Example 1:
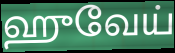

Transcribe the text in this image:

ஹுவேய்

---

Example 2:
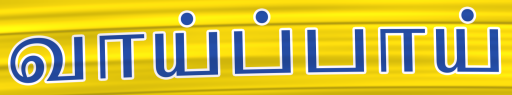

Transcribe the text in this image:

வாய்ப்பாய்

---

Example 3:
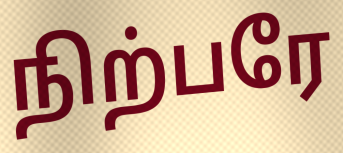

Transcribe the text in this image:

நிற்பரே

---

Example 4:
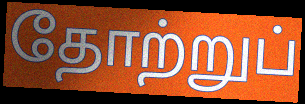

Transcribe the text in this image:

தோற்றுப்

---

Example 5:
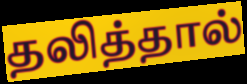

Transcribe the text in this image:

தலித்தால்